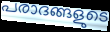
പരാദങ്ങളുടെ